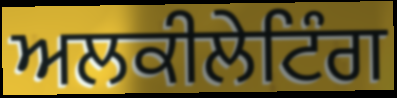
ਅਲਕੀਲੇਟਿੰਗ